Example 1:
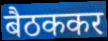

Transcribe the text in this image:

बैठककर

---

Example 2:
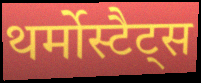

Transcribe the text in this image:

थर्मोस्टैट्स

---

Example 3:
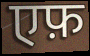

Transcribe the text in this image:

एफ़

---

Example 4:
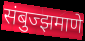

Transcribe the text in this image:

संबुज्झमाणे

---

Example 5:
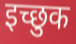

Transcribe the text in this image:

इच्छुक